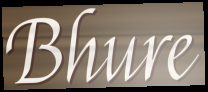
Bhure